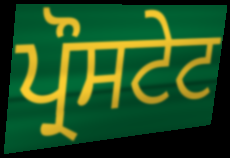
ਪ੍ਰੌਸਟੇਟ